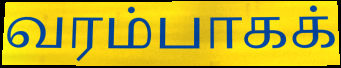
வரம்பாகக்